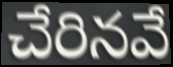
చేరినవే